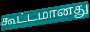
கூட்டமானது